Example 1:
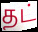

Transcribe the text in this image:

தட்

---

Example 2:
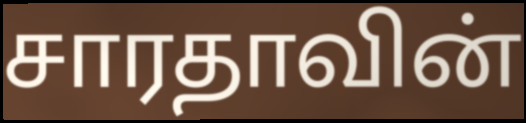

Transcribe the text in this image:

சாரதாவின்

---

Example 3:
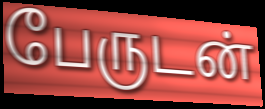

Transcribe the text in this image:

பேருடன்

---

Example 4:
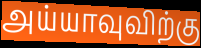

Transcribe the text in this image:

அய்யாவுவிற்கு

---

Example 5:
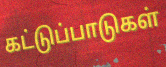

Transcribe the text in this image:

கட்டுப்பாடுகள்